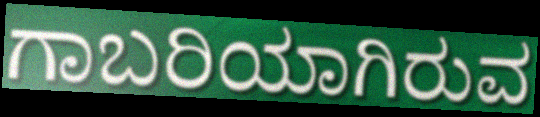
ಗಾಬರಿಯಾಗಿರುವ